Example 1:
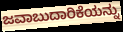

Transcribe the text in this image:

ಜವಾಬುದಾರಿಕೆಯನ್ನು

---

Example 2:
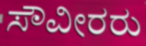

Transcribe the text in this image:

ಸೌವೀರರು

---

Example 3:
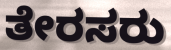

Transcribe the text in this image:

ತೇರಸರು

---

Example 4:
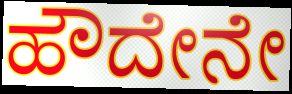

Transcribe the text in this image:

ಹೌದೇನೇ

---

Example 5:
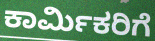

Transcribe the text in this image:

ಕಾರ್ಮಿಕರಿಗೆ